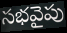
సభవైపు